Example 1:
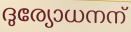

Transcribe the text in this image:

ദുര്യോധനന്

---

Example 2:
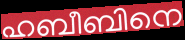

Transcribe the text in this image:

ഹബീബിനെ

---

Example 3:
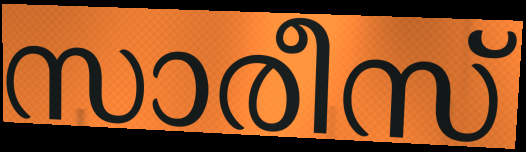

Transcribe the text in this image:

സാരീസ്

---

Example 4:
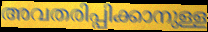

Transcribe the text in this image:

അവതരിപ്പിക്കാനുള്ള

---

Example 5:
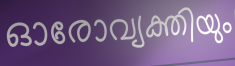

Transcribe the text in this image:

ഓരോവ്യക്തിയും